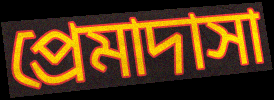
প্রেমাদাসা